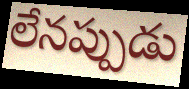
లేనప్పుడు